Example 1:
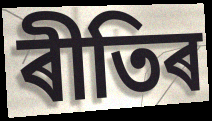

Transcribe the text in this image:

ৰীতিৰ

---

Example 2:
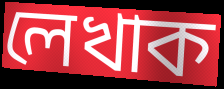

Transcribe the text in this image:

লেখাক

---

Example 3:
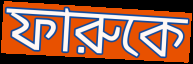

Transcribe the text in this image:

ফাৰুকে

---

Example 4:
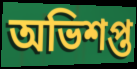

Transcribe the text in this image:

অভিশপ্ত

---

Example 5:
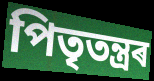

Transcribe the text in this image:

পিতৃতন্ত্ৰৰ